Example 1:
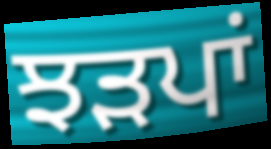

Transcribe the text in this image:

ਝੜਪਾਂ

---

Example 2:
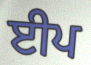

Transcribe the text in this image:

ਈਪ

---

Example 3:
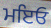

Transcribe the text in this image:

ਮਇਓ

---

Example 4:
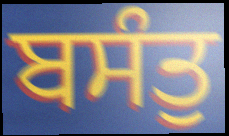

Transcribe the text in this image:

ਬਸੰਤੁ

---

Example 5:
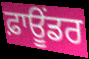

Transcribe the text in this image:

ਫ਼ਾਊਂਡਰ